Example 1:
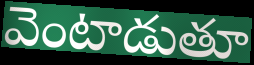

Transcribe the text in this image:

వెంటాడుతూ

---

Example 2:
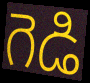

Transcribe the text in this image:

గెడి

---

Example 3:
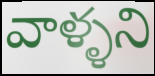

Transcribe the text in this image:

వాళ్ళని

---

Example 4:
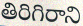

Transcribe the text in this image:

తిరిగిరాని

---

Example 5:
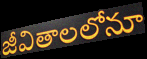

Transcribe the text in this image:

జీవితాలలోనూ